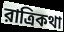
রাত্রিকথা